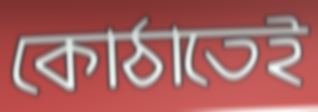
কোঠাতেই